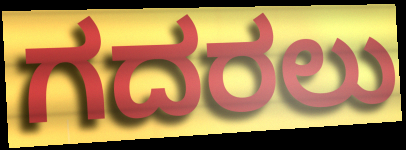
ಗದರಲು